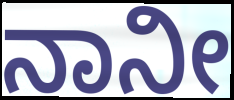
ನಾನೀ